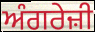
ਅੰਗਰੇਜ਼ੀ